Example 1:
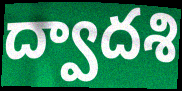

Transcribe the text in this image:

ద్వాదశి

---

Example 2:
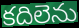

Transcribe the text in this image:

కదిలెను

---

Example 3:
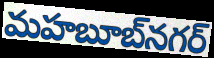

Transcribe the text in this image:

మహబూబ్‌నగర్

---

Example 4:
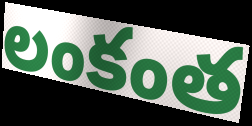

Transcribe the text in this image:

లంకంత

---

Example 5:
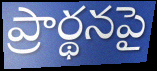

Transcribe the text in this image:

ప్రార్థనపై